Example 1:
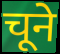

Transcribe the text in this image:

चूने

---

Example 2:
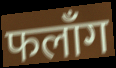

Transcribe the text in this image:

फलाँग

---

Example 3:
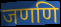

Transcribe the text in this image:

जणणि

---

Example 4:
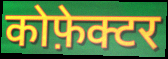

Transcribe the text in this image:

कोफ़ेक्टर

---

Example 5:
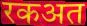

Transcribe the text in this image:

रकअत